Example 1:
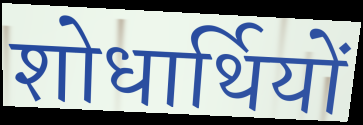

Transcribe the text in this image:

शोधार्थियों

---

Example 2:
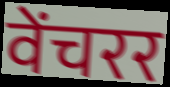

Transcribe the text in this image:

वेंचरर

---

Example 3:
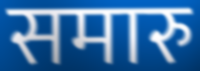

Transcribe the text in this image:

समारु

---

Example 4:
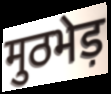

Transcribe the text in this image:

मुठभेड़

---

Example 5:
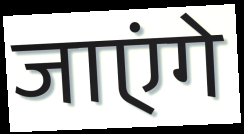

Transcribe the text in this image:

जाएंगे